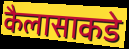
कैलासाकडे